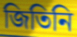
জিতিনি